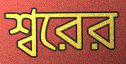
শ্বরের